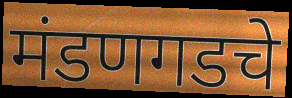
मंडणगडचे